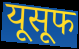
यूसूफ